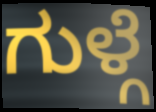
ಗುಳ್ಗೆ